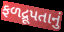
ફળદ્રૂપતાનું